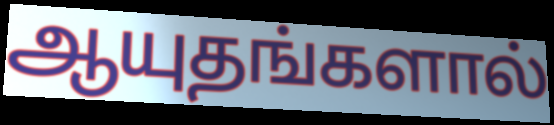
ஆயுதங்களால்